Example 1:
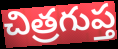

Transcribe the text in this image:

చిత్రగుప్త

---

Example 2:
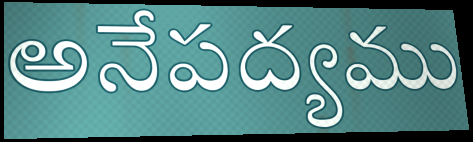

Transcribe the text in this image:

అనేపద్యము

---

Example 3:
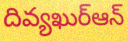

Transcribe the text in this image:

దివ్యఖుర్ఆన్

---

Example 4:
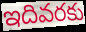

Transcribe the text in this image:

ఇదివరకు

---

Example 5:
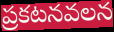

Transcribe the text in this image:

ప్రకటనవలన